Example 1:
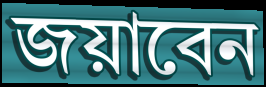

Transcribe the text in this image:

জয়াবেন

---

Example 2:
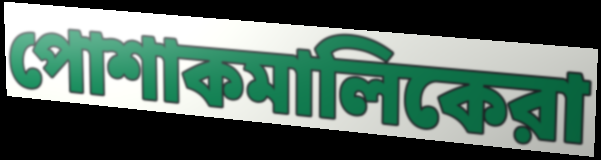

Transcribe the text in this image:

পোশাকমালিকেরা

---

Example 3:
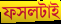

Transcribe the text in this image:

ফসলটাই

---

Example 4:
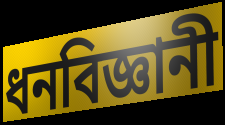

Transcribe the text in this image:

ধনবিজ্ঞানী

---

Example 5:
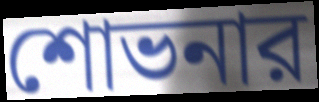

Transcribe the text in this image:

শোভনার